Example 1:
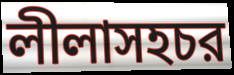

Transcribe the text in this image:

লীলাসহচর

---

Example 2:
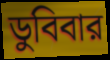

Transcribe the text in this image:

ডুবিবার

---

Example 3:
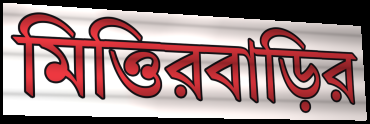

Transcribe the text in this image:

মিত্তিরবাড়ির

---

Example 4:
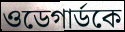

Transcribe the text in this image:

ওডেগার্ডকে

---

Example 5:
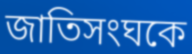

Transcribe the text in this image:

জাতিসংঘকে